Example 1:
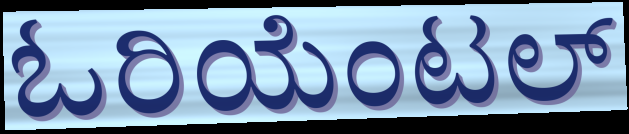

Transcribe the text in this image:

ಓರಿಯೆಂಟಲ್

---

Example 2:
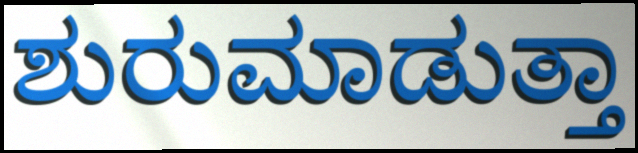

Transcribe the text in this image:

ಶುರುಮಾಡುತ್ತಾ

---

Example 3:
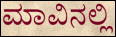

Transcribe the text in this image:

ಮಾವಿನಲ್ಲಿ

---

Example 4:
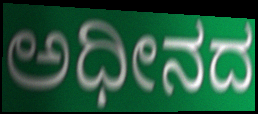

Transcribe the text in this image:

ಅಧೀನದ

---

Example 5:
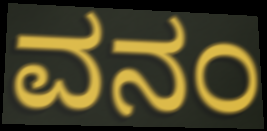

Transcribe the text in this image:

ವನಂ